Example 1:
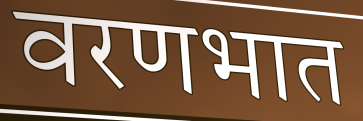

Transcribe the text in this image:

वरणभात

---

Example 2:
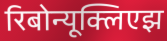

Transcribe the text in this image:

रिबोन्यूक्लिएझ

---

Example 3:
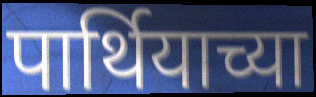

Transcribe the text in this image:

पार्थियाच्या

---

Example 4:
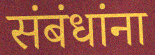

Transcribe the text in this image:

संबंधांना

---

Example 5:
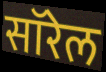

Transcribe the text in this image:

सॉरेल